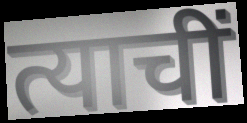
त्याचीं